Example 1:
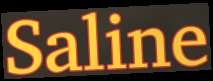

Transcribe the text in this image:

Saline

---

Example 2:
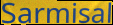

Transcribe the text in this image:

Sarmisal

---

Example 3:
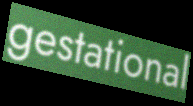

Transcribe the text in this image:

gestational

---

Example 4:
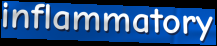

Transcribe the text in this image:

inflammatory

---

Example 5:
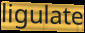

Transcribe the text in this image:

ligulate